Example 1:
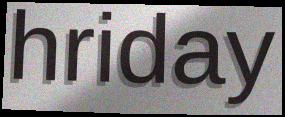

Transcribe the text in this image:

hriday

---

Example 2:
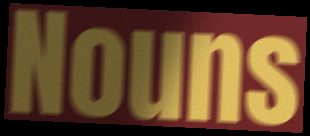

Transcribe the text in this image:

Nouns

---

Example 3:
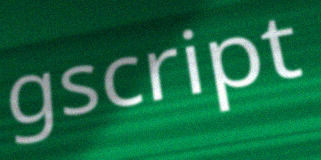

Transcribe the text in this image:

gscript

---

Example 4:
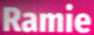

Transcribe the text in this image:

Ramie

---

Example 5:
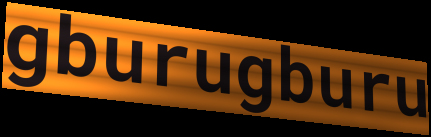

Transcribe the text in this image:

gburugburu